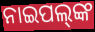
ନାଇପଲ୍‍ଙ୍କ